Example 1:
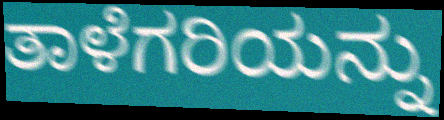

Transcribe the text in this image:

ತಾಳೆಗರಿಯನ್ನು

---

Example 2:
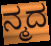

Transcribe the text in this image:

ನ್ಮದ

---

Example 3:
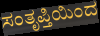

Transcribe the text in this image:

ಸಂತೃಪ್ತಿಯಿಂದ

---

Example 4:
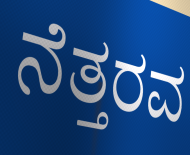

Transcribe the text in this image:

ನೆತ್ತರವ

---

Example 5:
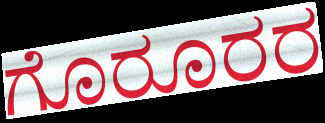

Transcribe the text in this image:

ಗೊರೂರರ